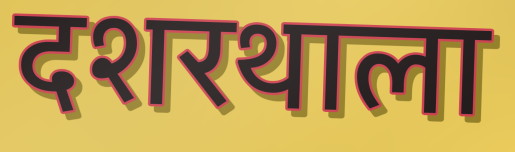
दशरथाला